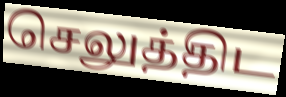
செலுத்திட